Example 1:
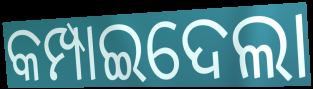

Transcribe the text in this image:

କମ୍ପାଇଦେଲା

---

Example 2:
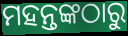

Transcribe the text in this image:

ମହନ୍ତଙ୍କଠାରୁ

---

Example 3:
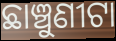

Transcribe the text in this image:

ଛାଞ୍ଚୁଣୀଟା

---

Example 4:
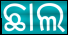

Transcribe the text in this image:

ଛାଲ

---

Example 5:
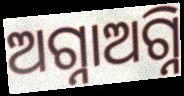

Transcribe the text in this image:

ଅଗ୍ନାଅଗ୍ନି